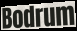
Bodrum